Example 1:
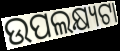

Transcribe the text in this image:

ଉପଲକ୍ଷ୍ୟଟା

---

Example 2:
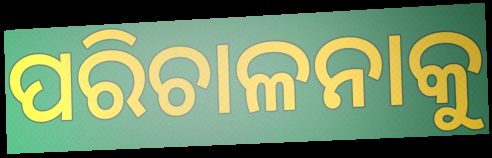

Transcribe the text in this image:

ପରିଚାଳନାକୁ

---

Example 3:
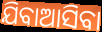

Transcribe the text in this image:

ଯିବାଆସିବା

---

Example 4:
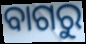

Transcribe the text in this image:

ବାଗରୁ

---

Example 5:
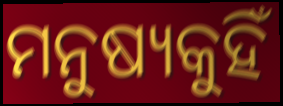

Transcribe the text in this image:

ମନୁଷ୍ୟକୁହିଁ